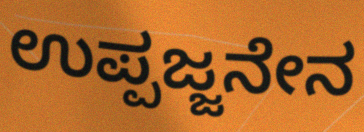
ಉಪ್ಪಜ್ಜನೇನ